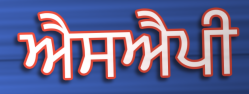
ਐਸਐਪੀ